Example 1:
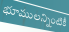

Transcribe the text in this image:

భూములన్నింటికీ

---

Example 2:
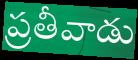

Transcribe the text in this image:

ప్రతీవాడు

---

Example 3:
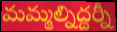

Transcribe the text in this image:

మమ్మల్నిద్దర్నీ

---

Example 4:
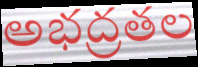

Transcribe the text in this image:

అభద్రతల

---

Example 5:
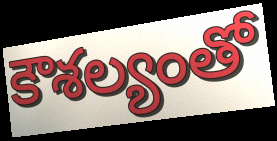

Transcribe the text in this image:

కౌశల్యంతో